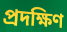
প্রদক্ষিণ